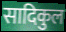
सादिकुल